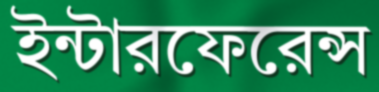
ইন্টারফেরেন্স